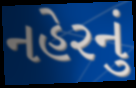
નહેરનું